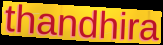
thandhira